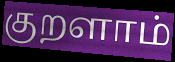
குறளாம்